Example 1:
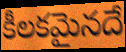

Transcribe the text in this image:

కీలకమైనదే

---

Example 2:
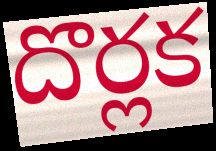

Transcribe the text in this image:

దొర్లక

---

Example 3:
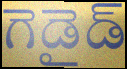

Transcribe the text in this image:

గెడైడ్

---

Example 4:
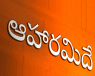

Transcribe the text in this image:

ఆహారమిదే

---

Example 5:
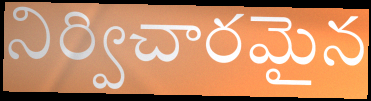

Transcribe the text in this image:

నిర్విచారమైన